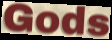
Gods